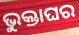
ଭୁକ୍ତାଘର